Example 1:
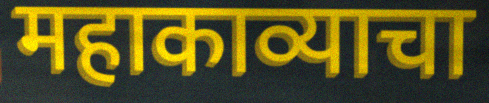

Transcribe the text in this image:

महाकाव्याचा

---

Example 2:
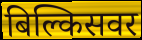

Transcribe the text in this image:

बिल्किसवर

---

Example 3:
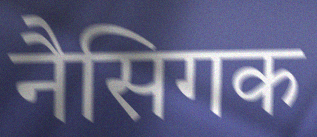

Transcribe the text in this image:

नैसिगक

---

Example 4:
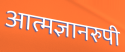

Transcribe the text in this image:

आत्मज्ञानरुपी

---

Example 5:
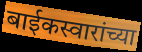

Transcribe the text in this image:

बाईकस्वारांच्या